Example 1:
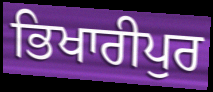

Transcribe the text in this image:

ਭਿਖਾਰੀਪੁਰ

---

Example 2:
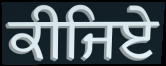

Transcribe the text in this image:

ਕੀਜਿਏ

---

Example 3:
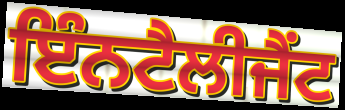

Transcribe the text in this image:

ਇੰਨਟੈਲੀਜੈਂਟ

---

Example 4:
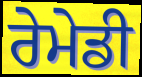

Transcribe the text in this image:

ਰੇਮੇਡੀ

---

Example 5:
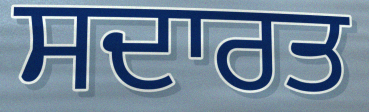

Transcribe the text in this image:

ਸਦਾਰਤ